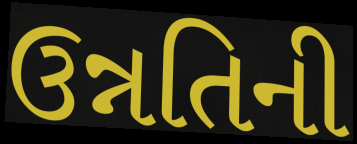
ઉન્નતિની